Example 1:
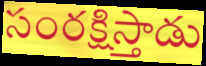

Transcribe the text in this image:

సంరక్షిస్తాడు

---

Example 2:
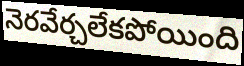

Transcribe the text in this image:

నెరవేర్చలేకపోయింది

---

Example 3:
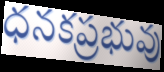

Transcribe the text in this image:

ధనకప్రభువు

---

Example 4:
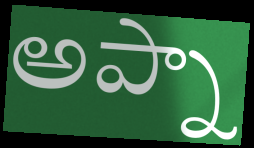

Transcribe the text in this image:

అప్నా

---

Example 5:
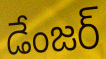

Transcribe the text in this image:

డేంజర్